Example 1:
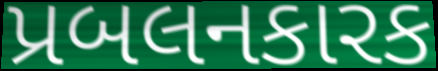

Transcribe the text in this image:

પ્રબલનકારક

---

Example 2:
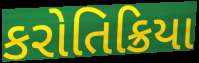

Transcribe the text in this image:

કરોતિક્રિયા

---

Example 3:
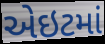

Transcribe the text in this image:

એઇટમાં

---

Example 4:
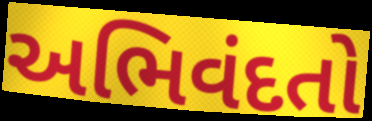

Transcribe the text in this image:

અભિવંદતો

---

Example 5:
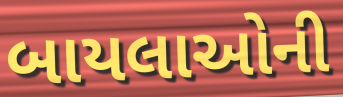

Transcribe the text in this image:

બાયલાઓની